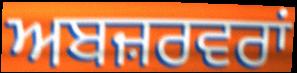
ਅਬਜ਼ਰਵਰਾਂ